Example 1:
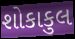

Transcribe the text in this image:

શોકાકુલ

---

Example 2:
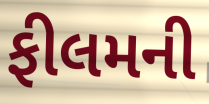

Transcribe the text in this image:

ફીલમની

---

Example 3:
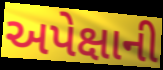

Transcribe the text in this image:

અપેક્ષાની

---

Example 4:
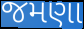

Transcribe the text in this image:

જમણા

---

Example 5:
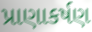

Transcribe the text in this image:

પ્રાણાકર્ષણ